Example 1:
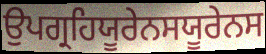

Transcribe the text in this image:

ਉਪਗ੍ਰਹਿਯੂਰੇਨਸਯੂਰੇਨਸ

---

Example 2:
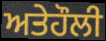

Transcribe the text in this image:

ਅਤੇਹੌਲੀ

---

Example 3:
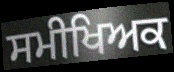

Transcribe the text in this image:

ਸਮੀਖਿਅਕ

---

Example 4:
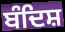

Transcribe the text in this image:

ਬੰਦਿਸ਼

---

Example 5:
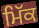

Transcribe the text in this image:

ਮਿੱਕ